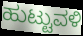
ಹುಟ್ಟುವಳಿ